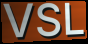
VSL